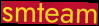
smteam